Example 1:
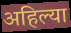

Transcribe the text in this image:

अहिल्या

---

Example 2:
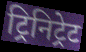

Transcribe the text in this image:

ट्रिनिट्रेट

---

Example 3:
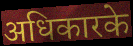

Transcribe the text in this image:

अधिकारके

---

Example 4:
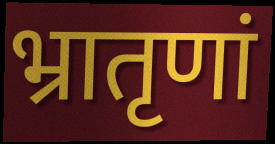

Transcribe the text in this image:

भ्रातृणां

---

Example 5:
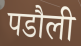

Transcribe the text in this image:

पडौली